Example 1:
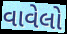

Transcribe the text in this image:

વાવેલો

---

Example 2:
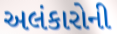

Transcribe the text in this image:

અલંકારોની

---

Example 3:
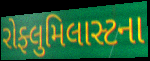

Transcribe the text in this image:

રોફ્લુમિલાસ્ટના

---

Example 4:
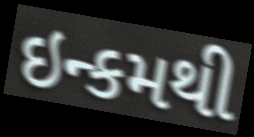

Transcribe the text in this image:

ઇન્કમથી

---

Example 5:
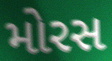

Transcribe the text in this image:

મોરસ